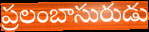
ప్రలంబాసురుడు